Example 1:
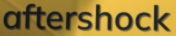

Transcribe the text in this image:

aftershock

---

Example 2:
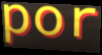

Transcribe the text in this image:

por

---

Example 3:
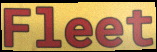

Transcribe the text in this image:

Fleet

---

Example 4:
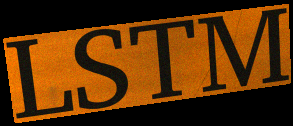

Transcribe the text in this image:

LSTM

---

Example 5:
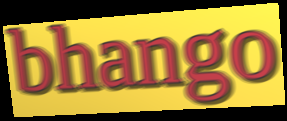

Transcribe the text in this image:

bhango